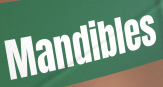
Mandibles